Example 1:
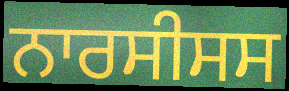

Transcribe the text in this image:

ਨਾਰਸੀਸਸ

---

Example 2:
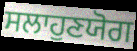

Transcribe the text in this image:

ਸਲਾਹੁਣਯੋਗ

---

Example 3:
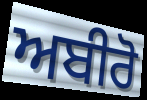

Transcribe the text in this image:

ਅਬੀਰੋ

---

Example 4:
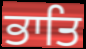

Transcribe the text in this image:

ਭਾਤਿ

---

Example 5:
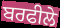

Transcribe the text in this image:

ਬਰਫੀਲੇ